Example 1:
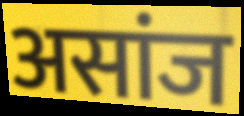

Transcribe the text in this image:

असांज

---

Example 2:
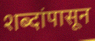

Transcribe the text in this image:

शब्दांपासून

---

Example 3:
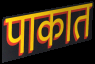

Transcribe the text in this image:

पाकात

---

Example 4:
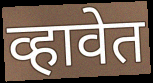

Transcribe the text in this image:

व्हावेत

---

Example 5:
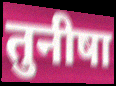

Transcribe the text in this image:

तुनीषा